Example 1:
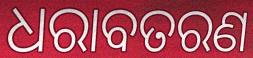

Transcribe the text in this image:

ଧରାବତରଣ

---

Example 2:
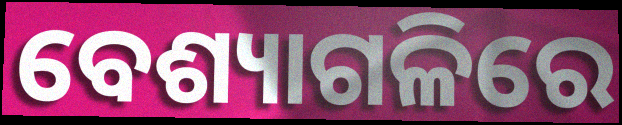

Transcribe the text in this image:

ବେଶ୍ୟାଗଳିରେ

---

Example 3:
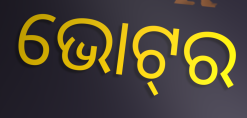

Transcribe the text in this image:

ଭୋଟ୍‍ର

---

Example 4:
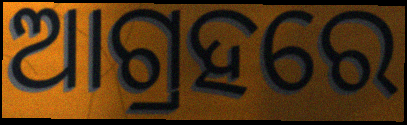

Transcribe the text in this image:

ଆଗ୍ରହରେ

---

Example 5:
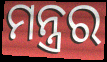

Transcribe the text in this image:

ମନ୍ତ୍ରର